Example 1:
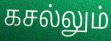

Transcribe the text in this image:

கசல்லும்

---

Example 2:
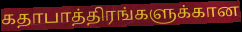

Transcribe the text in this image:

கதாபாத்திரங்களுக்கான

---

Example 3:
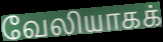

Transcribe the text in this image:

வேலியாகக்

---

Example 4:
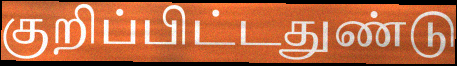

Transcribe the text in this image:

குறிப்பிட்டதுண்டு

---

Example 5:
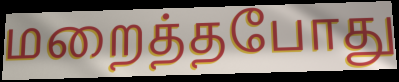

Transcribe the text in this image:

மறைத்தபோது